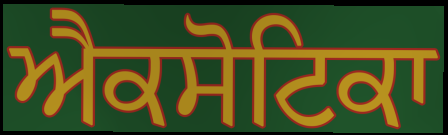
ਐਕਸੋਟਿਕਾ